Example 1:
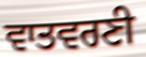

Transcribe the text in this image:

ਵਾਤਵਰਣੀ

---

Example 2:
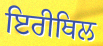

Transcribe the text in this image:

ਇਰੀਥਿਲ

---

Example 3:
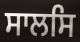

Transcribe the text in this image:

ਸਾਲਸਿ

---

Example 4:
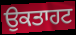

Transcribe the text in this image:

ਉਕਤਾਹਟ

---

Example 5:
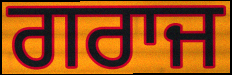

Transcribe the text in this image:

ਗਰਾਜ